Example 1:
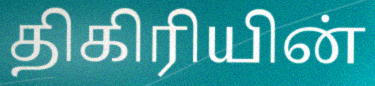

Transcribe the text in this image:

திகிரியின்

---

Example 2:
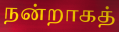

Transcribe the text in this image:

நன்றாகத்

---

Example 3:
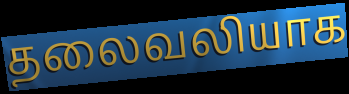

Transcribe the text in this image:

தலைவலியாக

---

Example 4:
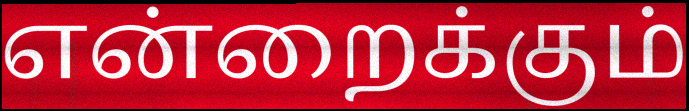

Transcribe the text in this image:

என்றைக்கும்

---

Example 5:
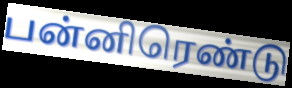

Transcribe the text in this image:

பன்னிரெண்டு